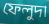
ফেলুদা